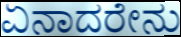
ಏನಾದರೇನು